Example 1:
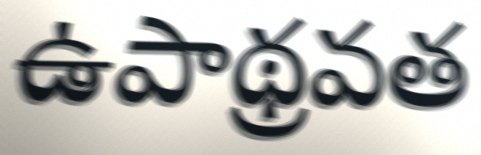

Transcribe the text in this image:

ఉపాథ్రవత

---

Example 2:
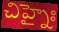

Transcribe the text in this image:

చిహ్నైః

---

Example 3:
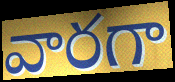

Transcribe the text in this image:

వారగా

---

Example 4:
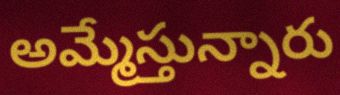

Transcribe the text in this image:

అమ్మేస్తున్నారు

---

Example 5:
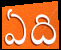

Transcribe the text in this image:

ఏది